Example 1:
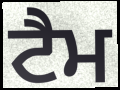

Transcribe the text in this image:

ਟੈਮ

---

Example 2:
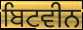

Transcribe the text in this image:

ਬਿਟਵੀਨ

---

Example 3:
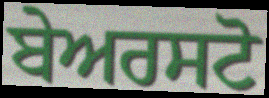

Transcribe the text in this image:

ਬੇਅਰਸਟੋ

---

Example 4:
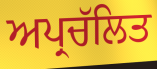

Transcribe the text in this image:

ਅਪ੍ਰਚੱਲਿਤ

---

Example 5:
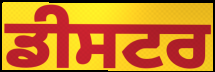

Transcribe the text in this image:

ਡੀਸਟਰ